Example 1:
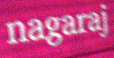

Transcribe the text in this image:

nagaraj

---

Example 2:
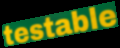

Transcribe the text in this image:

testable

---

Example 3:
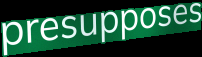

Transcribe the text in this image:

presupposes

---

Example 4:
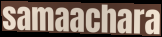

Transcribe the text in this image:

samaachara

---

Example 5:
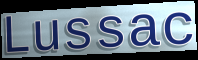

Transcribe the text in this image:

Lussac